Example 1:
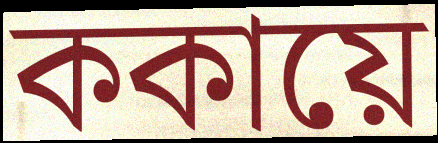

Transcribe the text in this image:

ককায়ে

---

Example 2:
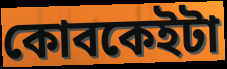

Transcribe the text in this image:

কোবকেইটা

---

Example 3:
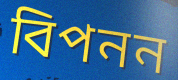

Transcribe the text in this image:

বিপনন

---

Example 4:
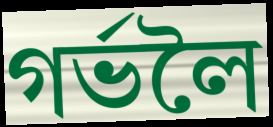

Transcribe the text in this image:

গৰ্ভলৈ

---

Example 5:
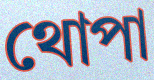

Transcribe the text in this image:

থোপা